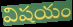
విషయం